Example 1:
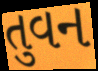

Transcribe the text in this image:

તુવન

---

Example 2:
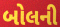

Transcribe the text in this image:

બોલની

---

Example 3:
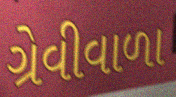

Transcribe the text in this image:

ગ્રેવીવાળા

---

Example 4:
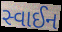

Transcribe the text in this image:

સ્વાઈન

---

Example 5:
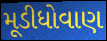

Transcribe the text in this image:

મૂડીધોવાણ